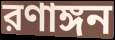
রণাঙ্গন